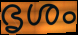
ഭൃശം